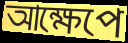
আক্ষেপে